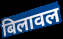
बिलावल